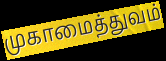
முகாமைத்துவம்